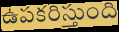
ఉపకరిస్తుంది